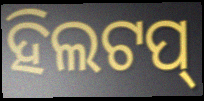
ହିଲଟପ୍